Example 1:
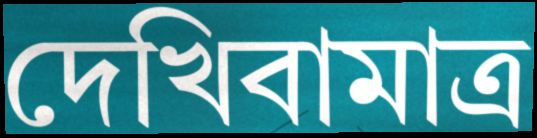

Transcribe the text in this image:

দেখিবামাত্র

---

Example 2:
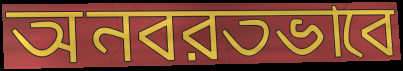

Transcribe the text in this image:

অনবরতভাবে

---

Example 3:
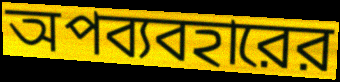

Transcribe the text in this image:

অপব্যবহারের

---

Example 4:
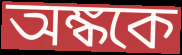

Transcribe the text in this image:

অঙ্ককে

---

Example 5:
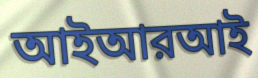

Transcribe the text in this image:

আইআরআই